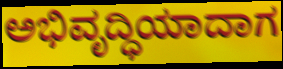
ಅಭಿವೃದ್ಧಿಯಾದಾಗ